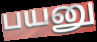
பயனு